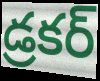
డ్రకర్